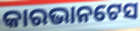
କାରଭାନଟେସ